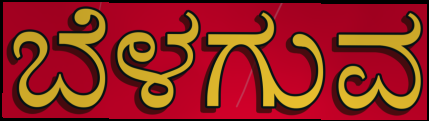
ಬೆಳಗುವ